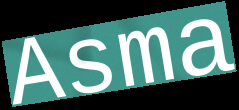
Asma